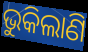
ଭୁକିଲାଣି